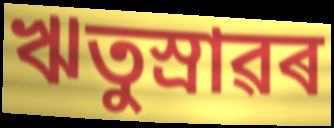
ঋতুস্ৰাৱৰ